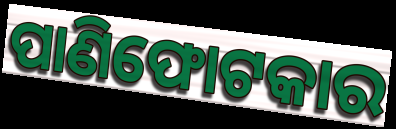
ପାଣିଫୋଟକାର